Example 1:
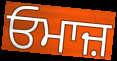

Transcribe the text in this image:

ਓਮਾਜ਼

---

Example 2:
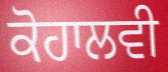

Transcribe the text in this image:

ਕੋਹਾਲਵੀ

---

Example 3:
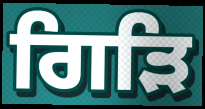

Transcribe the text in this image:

ਗਿੜਿ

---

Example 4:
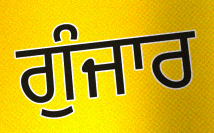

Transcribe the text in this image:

ਗੁੰਜਾਰ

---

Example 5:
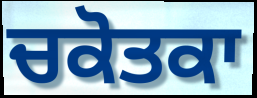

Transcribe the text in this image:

ਚਕੋਤਕਾ